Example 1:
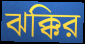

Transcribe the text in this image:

ঝক্কির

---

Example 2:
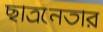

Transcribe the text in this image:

ছাত্রনেতার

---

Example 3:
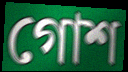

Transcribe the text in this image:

গোশ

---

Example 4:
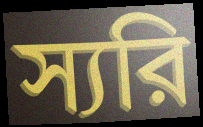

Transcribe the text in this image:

স্যরি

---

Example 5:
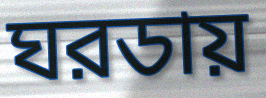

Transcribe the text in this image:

ঘরডায়